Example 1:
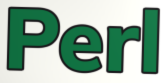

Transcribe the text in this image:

Perl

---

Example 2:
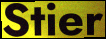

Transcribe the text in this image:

Stier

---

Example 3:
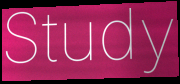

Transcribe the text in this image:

Study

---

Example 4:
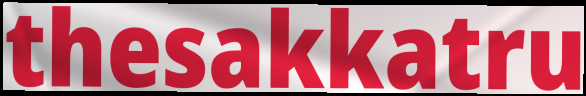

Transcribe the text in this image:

thesakkatru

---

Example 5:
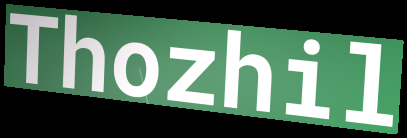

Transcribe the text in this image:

Thozhil